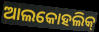
ଆଲକୋହଲିକ୍